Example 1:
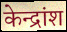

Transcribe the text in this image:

केन्द्रांश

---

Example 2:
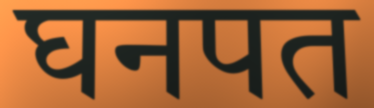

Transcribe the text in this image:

घनपत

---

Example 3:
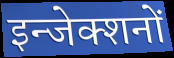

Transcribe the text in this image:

इन्जेक्शनों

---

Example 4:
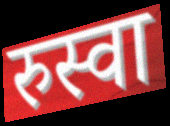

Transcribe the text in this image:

रुस्वा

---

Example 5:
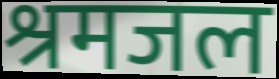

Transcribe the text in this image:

श्रमजल